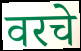
वरचे